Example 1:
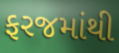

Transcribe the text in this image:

ફરજમાંથી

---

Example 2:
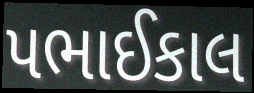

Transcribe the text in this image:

પભાઈકાલ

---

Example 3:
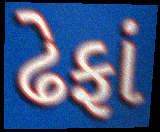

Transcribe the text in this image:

ઢેફાં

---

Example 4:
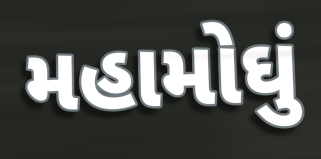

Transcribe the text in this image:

મહામોઘું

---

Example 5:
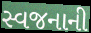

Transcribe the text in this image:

સ્વજનાની